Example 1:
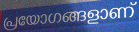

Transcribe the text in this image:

പ്രയോഗങ്ങളാണ്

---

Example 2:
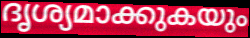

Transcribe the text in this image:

ദൃശ്യമാക്കുകയും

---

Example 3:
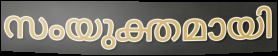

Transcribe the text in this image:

സംയുക്തമായി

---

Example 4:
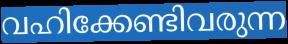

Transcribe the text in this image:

വഹിക്കേണ്ടിവരുന്ന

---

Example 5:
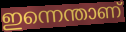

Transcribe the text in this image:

ഇന്നെന്താണ്